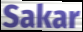
Sakar